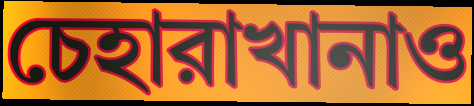
চেহারাখানাও